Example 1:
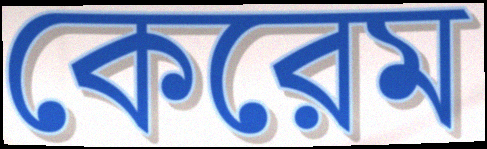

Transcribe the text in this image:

কেরেম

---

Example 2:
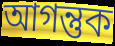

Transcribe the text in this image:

আগন্তুক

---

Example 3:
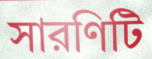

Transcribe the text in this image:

সারণিটি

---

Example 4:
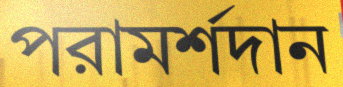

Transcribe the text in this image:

পরামর্শদান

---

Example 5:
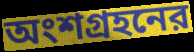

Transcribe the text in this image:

অংশগ্রহনের